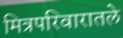
मित्रपरिवारातले